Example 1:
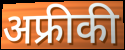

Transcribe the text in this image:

अफ्रीकी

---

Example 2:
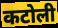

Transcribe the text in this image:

कटोली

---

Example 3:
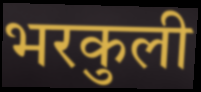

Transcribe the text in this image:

भरकुली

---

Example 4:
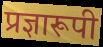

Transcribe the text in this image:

प्रज्ञारूपी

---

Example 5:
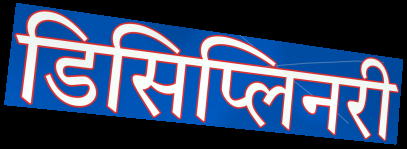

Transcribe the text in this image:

डिसिप्लिनरी